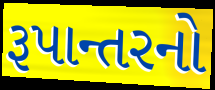
રૂપાન્તરનો